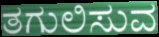
ತಗುಲಿಸುವ